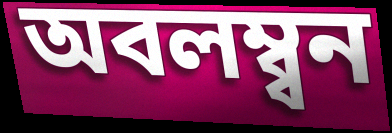
অবলম্ব্বন